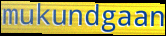
mukundgaan